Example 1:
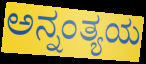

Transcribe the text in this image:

ಅನ್ನಂತ್ಯಯ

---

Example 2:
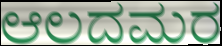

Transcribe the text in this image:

ಆಲದಮರ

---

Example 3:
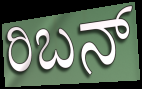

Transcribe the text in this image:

ರಿಬನ್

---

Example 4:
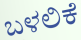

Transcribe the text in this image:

ಬಳಲಿಕೆ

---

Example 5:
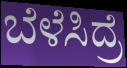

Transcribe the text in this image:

ಬೆಳೆಸಿದ್ರೆ